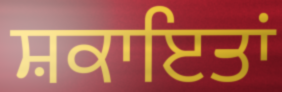
ਸ਼ਕਾਇਤਾਂ